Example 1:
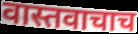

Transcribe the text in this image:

वास्तवाचाच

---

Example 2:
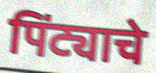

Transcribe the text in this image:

पिंट्याचे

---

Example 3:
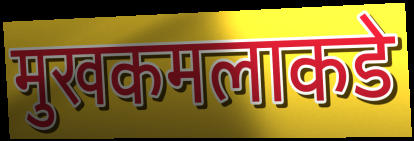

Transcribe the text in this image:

मुखकमलाकडे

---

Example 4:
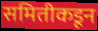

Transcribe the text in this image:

समितीकडून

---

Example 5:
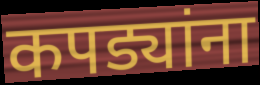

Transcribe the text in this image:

कपड्यांना